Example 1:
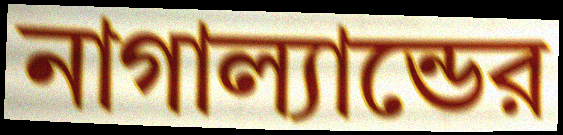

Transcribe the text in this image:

নাগাল্যান্ডের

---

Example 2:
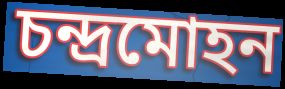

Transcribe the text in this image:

চন্দ্রমোহন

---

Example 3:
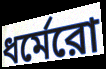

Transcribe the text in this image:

ধর্মেরো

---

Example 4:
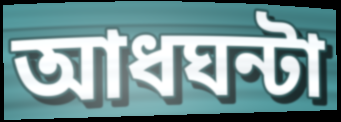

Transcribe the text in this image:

আধঘন্টা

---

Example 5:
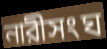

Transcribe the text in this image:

নারীসংঘ